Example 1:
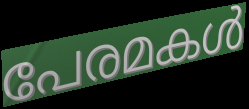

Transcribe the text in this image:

പേരമകൾ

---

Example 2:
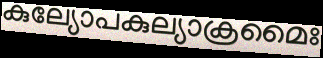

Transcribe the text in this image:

കുല്യോപകുല്യാക്രമൈഃ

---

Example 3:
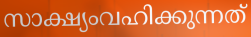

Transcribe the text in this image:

സാക്ഷ്യംവഹിക്കുന്നത്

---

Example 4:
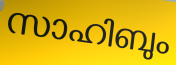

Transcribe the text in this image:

സാഹിബും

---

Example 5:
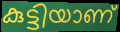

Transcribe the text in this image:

കുട്ടിയാണ്